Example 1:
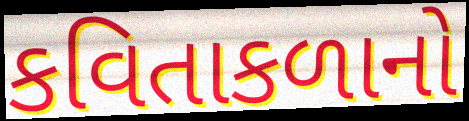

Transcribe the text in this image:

કવિતાકળાનો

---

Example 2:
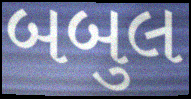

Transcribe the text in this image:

બબુલ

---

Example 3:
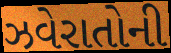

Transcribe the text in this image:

ઝવેરાતોની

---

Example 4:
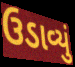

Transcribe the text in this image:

ઉડાવ્યું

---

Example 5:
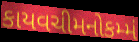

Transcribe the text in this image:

કાયવચીમનોકમ્મં